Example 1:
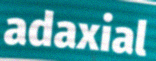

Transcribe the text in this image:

adaxial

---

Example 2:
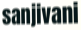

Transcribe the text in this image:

sanjivani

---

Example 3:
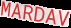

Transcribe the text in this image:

MARDAV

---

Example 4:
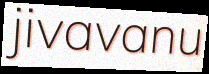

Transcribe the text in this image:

jivavanu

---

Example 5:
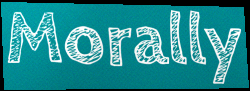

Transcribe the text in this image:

Morally